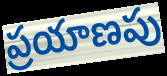
ప్రయాణపు